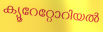
ക്യൂറേറ്റോറിയൽ